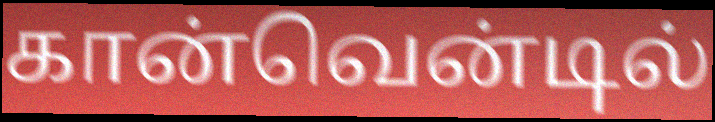
கான்வென்டில்